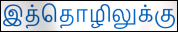
இத்தொழிலுக்கு